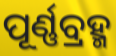
ପୂର୍ଣ୍ଣବ୍ରହ୍ମ